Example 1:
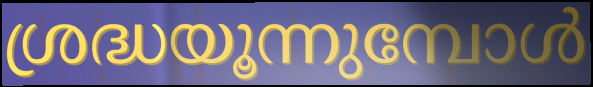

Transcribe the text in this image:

ശ്രദ്ധയൂന്നുമ്പോൾ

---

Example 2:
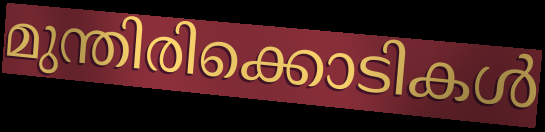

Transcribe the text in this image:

മുന്തിരിക്കൊടികൾ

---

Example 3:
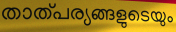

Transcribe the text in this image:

താത്പര്യങ്ങളുടെയും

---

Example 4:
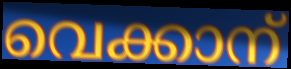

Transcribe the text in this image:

വെക്കാന്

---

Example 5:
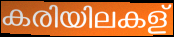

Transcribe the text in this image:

കരിയിലകള്